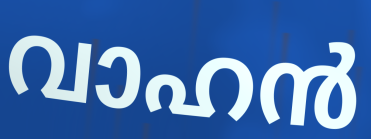
വാഹൻ